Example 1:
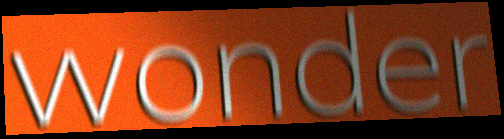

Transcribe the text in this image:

wonder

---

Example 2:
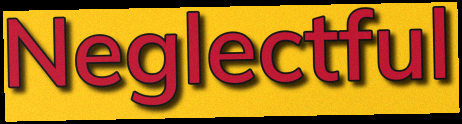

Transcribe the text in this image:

Neglectful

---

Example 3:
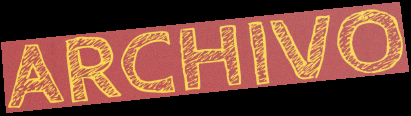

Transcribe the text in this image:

ARCHIVO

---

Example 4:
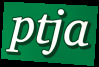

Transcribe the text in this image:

ptja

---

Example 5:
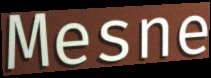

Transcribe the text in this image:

Mesne